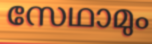
സേഥാമും